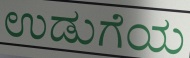
ಉಡುಗೆಯ